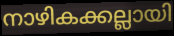
നാഴികക്കല്ലായി